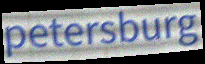
petersburg